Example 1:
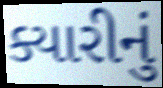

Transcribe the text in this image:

ક્યારીનું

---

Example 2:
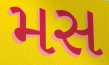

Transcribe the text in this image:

મસ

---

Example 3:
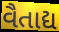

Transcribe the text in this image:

વૈતાદ્ય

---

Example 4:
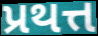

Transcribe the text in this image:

પ્રથત્ત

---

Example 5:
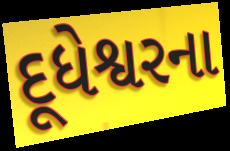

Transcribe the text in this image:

દૂધેશ્વરના